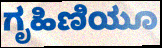
ಗೃಹಿಣಿಯೂ